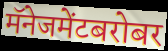
मॅनेजमेंटबरोबर